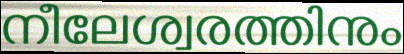
നീലേശ്വരത്തിനും